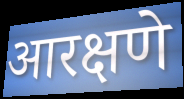
आरक्षणे